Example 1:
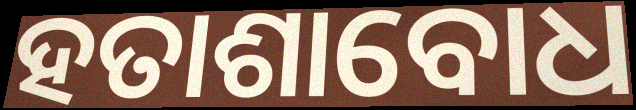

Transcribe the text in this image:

ହତାଶାବୋଧ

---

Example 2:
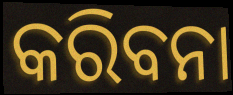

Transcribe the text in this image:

କରିବନା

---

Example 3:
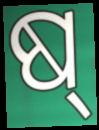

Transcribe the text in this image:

ଷ୍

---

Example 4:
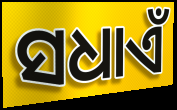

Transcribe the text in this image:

ସଧାଏଁ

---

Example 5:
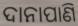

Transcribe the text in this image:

ଦାନାପାଣି